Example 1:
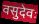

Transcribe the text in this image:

वसुदेवः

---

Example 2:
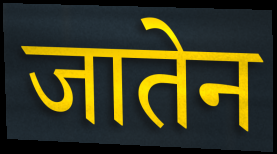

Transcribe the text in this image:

जातेन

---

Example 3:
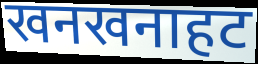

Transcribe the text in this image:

खनखनाहट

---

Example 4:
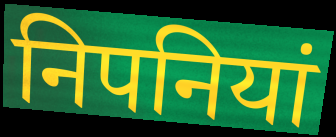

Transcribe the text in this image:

निपनियां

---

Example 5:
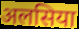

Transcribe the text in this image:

अलसिया